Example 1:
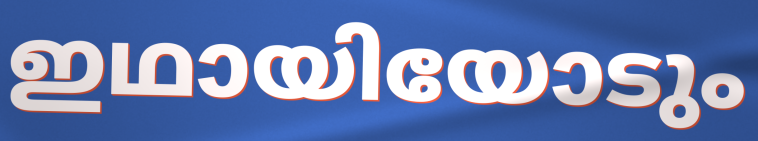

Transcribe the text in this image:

ഇഥായിയോടും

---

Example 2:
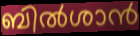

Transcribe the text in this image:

ബിൽശാൻ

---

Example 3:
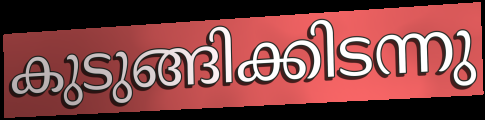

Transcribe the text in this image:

കുടുങ്ങിക്കിടന്നു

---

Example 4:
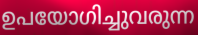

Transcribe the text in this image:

ഉപയോഗിച്ചുവരുന്ന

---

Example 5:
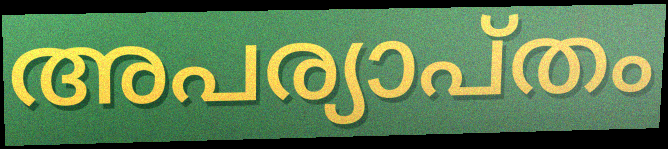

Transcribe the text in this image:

അപര്യാപ്തം